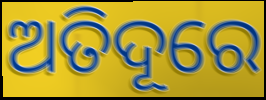
ଅତିଦୂରେ